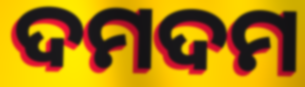
ଦମଦମ